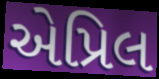
એપ્રિલ